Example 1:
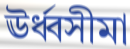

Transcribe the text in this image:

ঊর্ধ্বসীমা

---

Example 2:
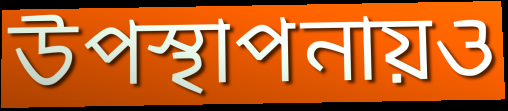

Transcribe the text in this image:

উপস্থাপনায়ও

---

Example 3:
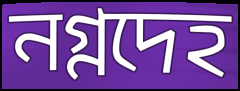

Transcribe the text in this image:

নগ্নদেহ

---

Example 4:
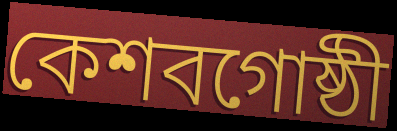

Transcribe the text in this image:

কেশবগোষ্ঠী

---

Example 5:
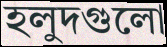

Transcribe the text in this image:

হলুদগুলো